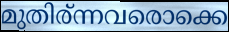
മുതിര്ന്നവരൊക്കെ